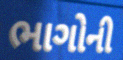
ભાગોની